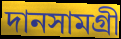
দানসামগ্রী